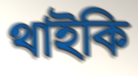
থাইকি